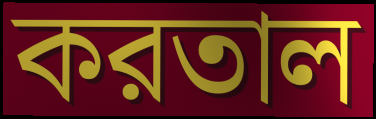
করতাল